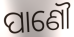
ପାଣୌ